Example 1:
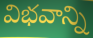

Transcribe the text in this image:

విభవాన్ని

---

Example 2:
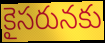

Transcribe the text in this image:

కైసరునకు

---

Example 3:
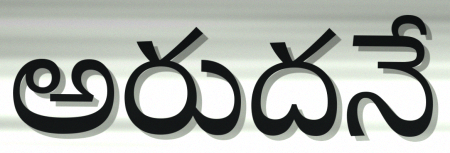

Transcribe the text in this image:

అరుదనే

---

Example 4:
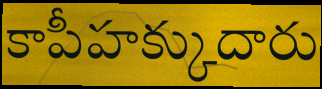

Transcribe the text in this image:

కాపీహక్కుదారు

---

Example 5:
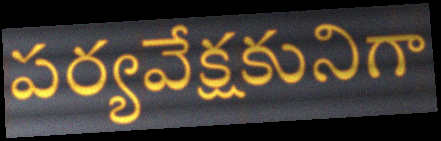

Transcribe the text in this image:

పర్యవేక్షకునిగా